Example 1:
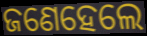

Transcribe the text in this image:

ଜଣେହେଲେ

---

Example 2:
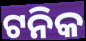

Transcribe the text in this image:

ଟନିକ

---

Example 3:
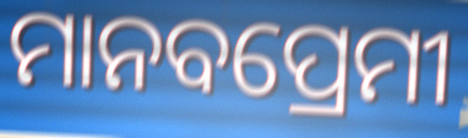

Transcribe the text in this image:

ମାନବପ୍ରେମୀ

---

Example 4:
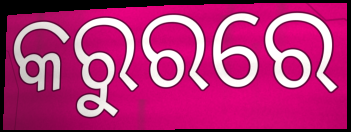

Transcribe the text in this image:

କରୁରରେ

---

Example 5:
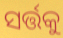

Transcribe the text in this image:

ସର୍ତ୍ତକୁ